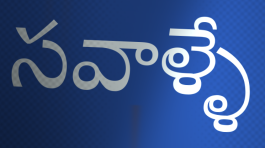
సవాళ్ళే